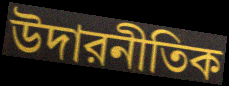
উদারনীতিক